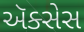
ઍક્સેસ